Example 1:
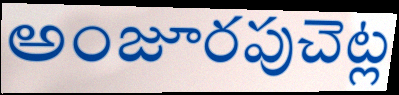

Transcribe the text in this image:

అంజూరపుచెట్ల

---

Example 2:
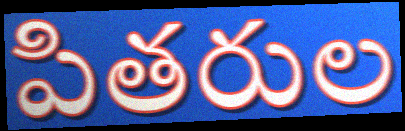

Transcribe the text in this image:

పితరుల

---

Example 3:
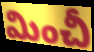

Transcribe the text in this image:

మించీ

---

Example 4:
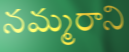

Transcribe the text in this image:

నమ్మరాని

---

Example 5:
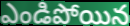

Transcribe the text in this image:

ఎండిపోయిన